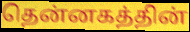
தென்னகத்தின்